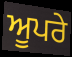
ਅੂਪਰੇ